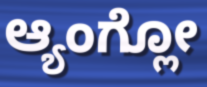
ಆ್ಯಂಗ್ಲೋ